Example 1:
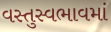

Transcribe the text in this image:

વસ્તુસ્વભાવમાં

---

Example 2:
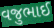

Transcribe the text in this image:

વજુભાઈ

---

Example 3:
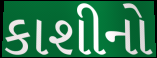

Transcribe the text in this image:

કાશીનો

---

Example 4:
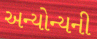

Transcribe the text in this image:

અન્યોન્યની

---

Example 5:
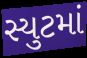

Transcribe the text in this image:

સ્યુટમાં